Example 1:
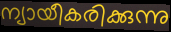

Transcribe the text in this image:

ന്യായീകരിക്കുന്നു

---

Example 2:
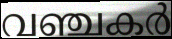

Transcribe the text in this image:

വഞ്ചകർ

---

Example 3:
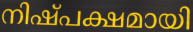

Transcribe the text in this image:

നിഷ്പക്ഷമായി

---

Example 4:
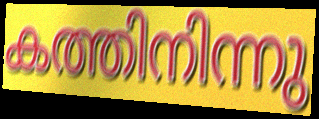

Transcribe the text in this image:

കത്തിനിന്നു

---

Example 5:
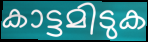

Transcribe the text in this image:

കാട്ടമിടുക